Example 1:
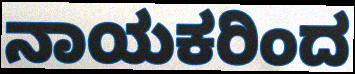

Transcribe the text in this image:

ನಾಯಕರಿಂದ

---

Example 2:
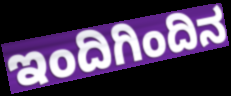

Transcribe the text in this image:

ಇಂದಿಗಿಂದಿನ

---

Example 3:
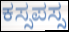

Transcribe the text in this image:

ಕಸ್ಸಪಸ್ಸ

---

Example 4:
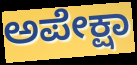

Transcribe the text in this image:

ಅಪೇಕ್ಷಾ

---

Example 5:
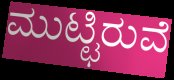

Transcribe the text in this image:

ಮುಟ್ಟಿರುವೆ